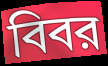
বিবর